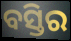
ବସ୍ତିର